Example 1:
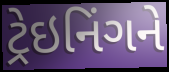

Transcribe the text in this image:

ટ્રેઇનિંગને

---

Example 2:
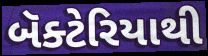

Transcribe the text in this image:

બૅક્ટેરિયાથી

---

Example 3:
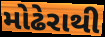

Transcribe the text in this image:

મોઢેરાથી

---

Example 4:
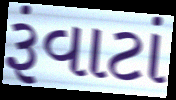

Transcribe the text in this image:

રૂંવાટાં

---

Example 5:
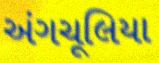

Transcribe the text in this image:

અંગચૂલિયા